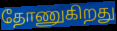
தோணுகிறது